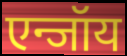
एन्जॉय